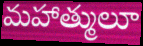
మహాత్ములూ